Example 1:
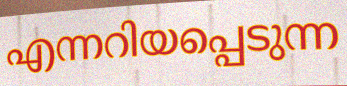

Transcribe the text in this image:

എന്നറിയപ്പെടുന്ന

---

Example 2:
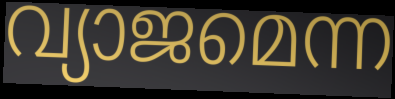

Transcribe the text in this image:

വ്യാജമെന്ന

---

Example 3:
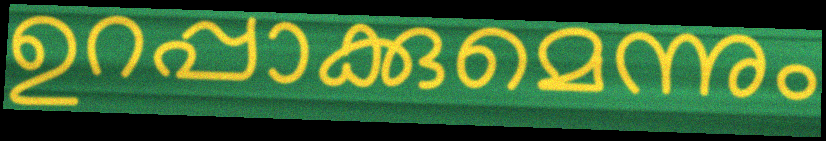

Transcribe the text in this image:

ഉറപ്പാക്കുമെന്നും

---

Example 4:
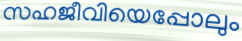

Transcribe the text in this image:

സഹജീവിയെപ്പോലും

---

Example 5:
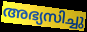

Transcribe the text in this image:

അഭ്യസിച്ചു